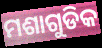
ମଶାଗୁଡିକ